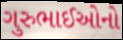
ગુરુભાઈઓનો